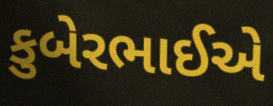
કુબેરભાઈએ